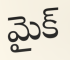
మైక్